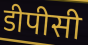
डीपीसी